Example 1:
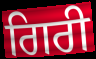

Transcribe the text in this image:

ਗਿਰੀ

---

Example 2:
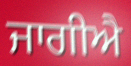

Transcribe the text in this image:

ਜਾਗੀਐ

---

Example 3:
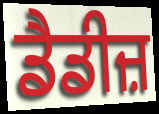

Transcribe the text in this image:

ਡੈਡੀਜ਼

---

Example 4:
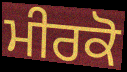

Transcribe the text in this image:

ਮੀਰਕੋ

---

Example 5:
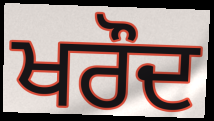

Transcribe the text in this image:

ਖਰੌਦ